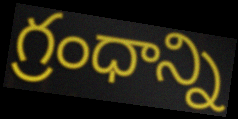
గ్రంధాన్ని